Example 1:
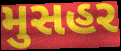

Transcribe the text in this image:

મુસહર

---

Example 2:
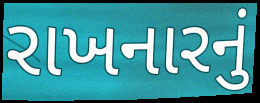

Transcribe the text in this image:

રાખનારનું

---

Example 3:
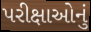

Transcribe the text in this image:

પરીક્ષાઓનું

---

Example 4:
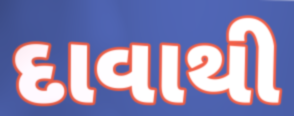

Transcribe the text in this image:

દાવાથી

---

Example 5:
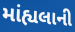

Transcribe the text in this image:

માંહ્યલાની